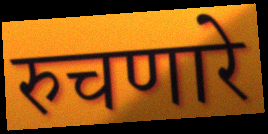
रुचणारे